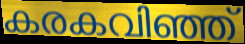
കരകവിഞ്ഞ്